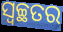
ସ୍ଵଚ୍ଛତର